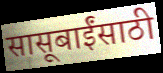
सासूबाईंसाठी